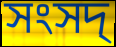
সংসদ্